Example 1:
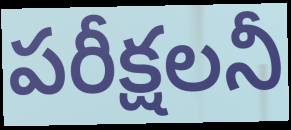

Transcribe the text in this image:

పరీక్షలనీ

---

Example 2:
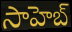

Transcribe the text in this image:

సాహెబ్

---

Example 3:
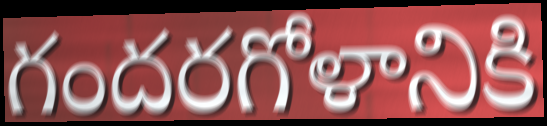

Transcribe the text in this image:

గందరగోళానికి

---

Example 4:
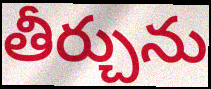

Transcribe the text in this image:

తీర్చును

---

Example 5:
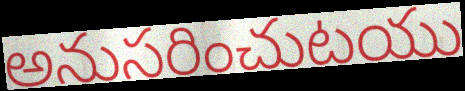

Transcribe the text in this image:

అనుసరించుటయు